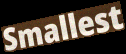
Smallest